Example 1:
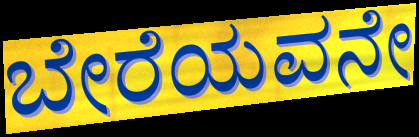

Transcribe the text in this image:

ಬೇರೆಯವನೇ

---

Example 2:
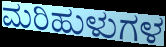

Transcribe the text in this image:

ಮರಿಹುಳುಗಳ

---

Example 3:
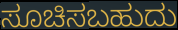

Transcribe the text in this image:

ಸೂಚಿಸಬಹುದು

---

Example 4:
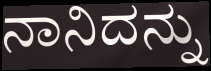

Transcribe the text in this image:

ನಾನಿದನ್ನು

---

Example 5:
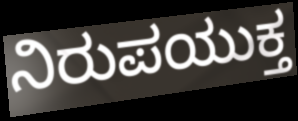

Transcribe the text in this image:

ನಿರುಪಯುಕ್ತ